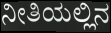
ನೀತಿಯಲ್ಲಿನ